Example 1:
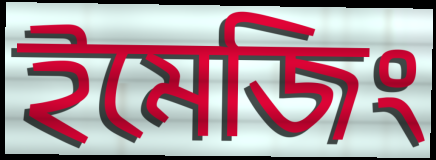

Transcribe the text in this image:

ইমেজিং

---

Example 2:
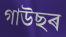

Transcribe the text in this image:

গাউছৰ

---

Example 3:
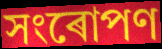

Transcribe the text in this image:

সংৰোপণ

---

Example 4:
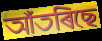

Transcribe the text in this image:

আঁতৰিছে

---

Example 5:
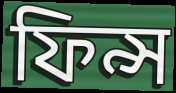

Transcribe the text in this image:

ফিন্স